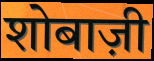
शोबाज़ी